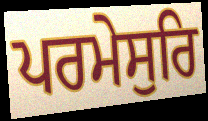
ਪਰਮੇਸੁਰਿ